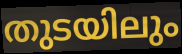
തുടയിലും